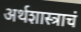
अर्थशास्त्राचं